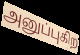
அனுப்புகிற